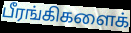
பீரங்கிகளைக்